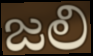
జలి